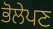
ਭੋਲੇਪਣ